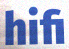
hifi